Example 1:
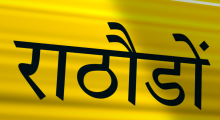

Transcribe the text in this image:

राठौडों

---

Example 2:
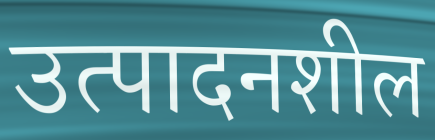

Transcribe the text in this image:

उत्पादनशील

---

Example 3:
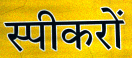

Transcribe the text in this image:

स्पीकरों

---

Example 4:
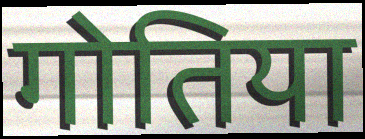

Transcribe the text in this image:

गोतिया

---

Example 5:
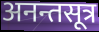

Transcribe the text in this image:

अनन्तसूत्र